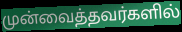
முன்வைத்தவர்களில்